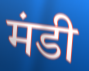
मंडी